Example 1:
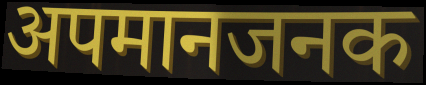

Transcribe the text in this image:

अपमानजनक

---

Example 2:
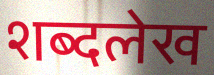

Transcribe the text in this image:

शब्दलेख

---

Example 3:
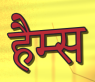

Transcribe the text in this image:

हैम्स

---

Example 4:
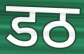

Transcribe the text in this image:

डठ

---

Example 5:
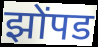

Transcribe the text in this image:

झोंपड